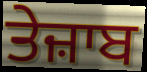
ਤੇਜ਼ਾਬ